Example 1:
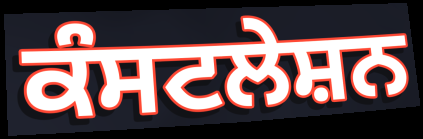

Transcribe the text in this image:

ਕੰਸਟਲੇਸ਼ਨ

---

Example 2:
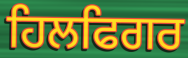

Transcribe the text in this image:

ਹਿਲਫਿਗਰ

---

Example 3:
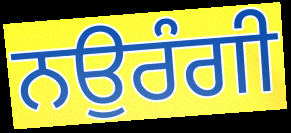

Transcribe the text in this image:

ਨਉਰੰਗੀ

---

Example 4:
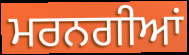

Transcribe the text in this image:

ਮਰਨਗੀਆਂ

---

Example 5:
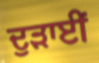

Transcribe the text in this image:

ਦੁੜਾਈਂ